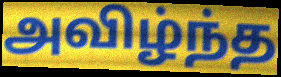
அவிழ்ந்த